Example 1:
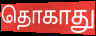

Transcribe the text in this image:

தொகாது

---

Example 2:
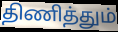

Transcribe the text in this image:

திணித்தும்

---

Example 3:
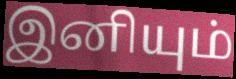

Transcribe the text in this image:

இனியும்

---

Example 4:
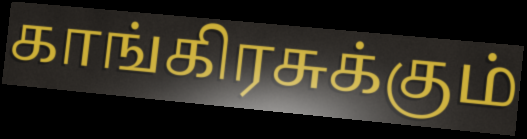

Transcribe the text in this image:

காங்கிரசுக்கும்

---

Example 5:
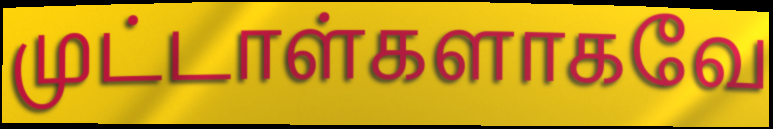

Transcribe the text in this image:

முட்டாள்களாகவே